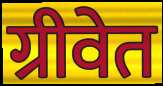
ग्रीवेत